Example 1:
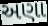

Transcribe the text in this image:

અણા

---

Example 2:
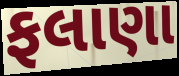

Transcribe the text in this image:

ફલાણા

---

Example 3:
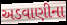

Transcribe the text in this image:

અડવાણીના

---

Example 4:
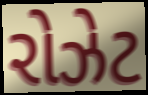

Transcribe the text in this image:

રોઝેટ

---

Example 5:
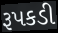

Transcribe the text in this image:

રૂપકડી